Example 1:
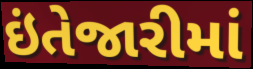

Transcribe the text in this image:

ઇંતેજારીમાં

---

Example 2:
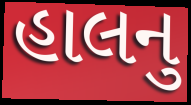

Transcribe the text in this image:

હાલનુ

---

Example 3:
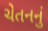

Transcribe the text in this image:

ચેતનનું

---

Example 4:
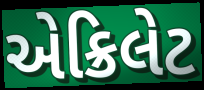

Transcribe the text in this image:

એક્રિલેટ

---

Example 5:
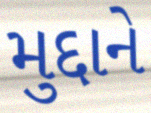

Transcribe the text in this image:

મુદ્દાને